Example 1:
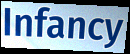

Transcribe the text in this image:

Infancy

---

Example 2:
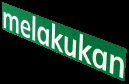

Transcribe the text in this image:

melakukan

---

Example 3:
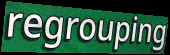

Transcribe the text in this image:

regrouping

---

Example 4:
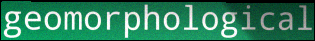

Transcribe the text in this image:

geomorphological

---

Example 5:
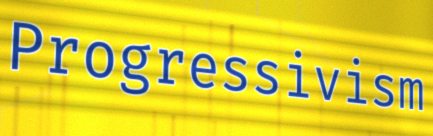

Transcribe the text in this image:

Progressivism